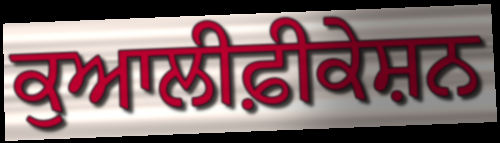
ਕੁਆਲੀਫ਼ੀਕੇਸ਼ਨ